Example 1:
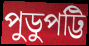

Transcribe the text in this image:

পুডুপট্টি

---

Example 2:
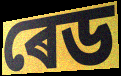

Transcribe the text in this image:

ৰেড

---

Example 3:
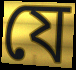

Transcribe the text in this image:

যে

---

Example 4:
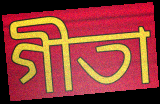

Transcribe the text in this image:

গীতা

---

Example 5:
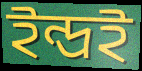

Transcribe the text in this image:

ইন্দ্ৰই